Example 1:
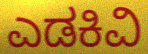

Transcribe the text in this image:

ಎಡಕಿವಿ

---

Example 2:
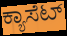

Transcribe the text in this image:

ಕ್ಯಾಸೆಟ್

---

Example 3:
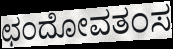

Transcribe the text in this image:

ಛಂದೋವತಂಸ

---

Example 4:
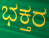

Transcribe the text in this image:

ಭಕ್ತರ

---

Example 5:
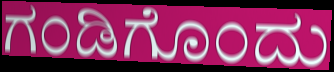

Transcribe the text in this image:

ಗಂಡಿಗೊಂದು